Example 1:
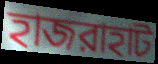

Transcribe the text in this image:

হাজরাহাট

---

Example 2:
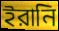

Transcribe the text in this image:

ইরানি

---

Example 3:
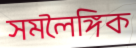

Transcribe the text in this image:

সমলৈঙ্গিক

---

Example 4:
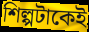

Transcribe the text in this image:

শিল্পটাকেই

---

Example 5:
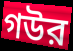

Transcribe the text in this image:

গউর